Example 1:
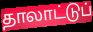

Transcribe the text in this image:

தாலாட்டுப்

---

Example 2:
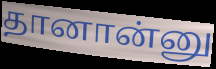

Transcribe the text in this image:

தானான்னு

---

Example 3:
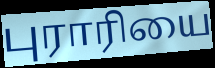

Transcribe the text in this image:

புராரியை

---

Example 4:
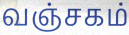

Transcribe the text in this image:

வஞ்சகம்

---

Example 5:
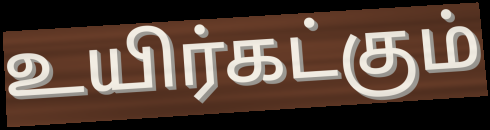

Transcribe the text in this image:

உயிர்கட்கும்